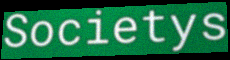
Societys